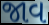
જાવ